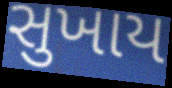
સુખાય